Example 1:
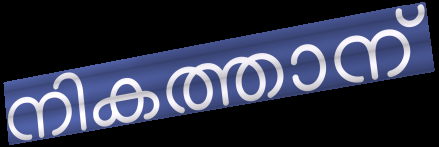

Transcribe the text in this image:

നികത്താന്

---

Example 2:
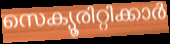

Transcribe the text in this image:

സെക്യൂരിറ്റിക്കാർ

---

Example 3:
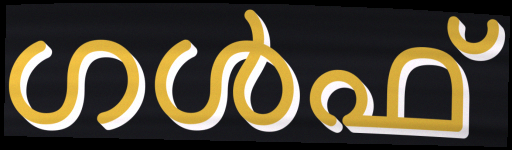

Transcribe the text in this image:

ഗൾഫ്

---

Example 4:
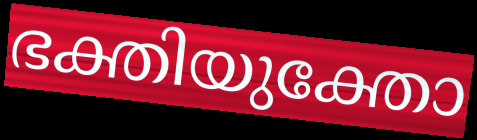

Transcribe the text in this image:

ഭക്തിയുക്തോ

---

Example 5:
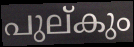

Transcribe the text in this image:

പുല്കും